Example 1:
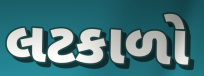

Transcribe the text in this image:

લટકાળો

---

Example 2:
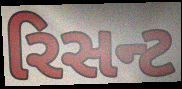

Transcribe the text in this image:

રિસન્ટ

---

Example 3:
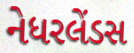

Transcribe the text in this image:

નેધરલેંડસ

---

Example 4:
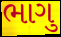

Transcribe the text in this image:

ભાગુ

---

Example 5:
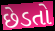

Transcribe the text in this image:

છેડતો